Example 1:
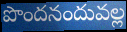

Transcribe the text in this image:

పొందనందువల్ల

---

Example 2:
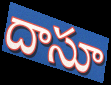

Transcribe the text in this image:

దాసూ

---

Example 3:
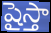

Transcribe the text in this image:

షైస్తా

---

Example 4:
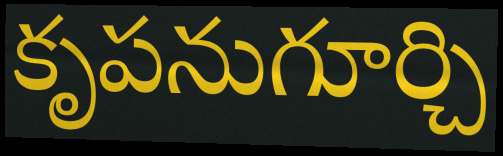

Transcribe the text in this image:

కృపనుగూర్చి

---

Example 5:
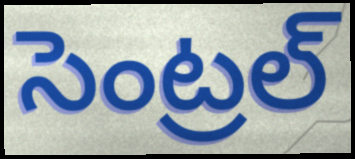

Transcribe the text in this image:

సెంట్రల్